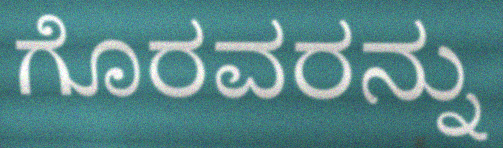
ಗೊರವರನ್ನು